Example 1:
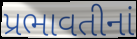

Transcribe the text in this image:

પ્રભાવતીનાં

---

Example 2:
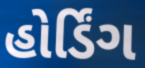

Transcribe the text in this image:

હોર્ડિંગ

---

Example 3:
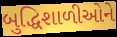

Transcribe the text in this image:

બુદ્ધિશાળીઓને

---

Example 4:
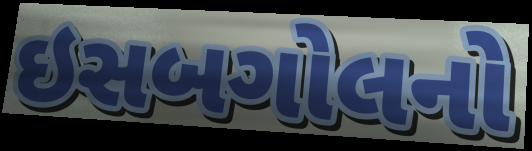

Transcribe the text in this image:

ઇસબગોલનો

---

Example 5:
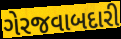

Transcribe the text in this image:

ગેરજવાબદારી